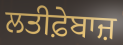
ਲਤੀਫ਼ੇਬਾਜ਼